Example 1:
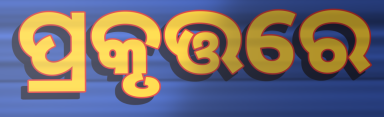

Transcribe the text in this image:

ପ୍ରକୃତ୍ତରେ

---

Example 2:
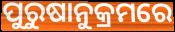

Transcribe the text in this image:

ପୁରୁଷାନୁକ୍ରମରେ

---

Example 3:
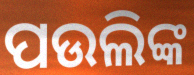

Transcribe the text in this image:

ପଉଲିଙ୍କ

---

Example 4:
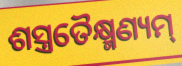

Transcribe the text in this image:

ଶସ୍ତ୍ରତୈକ୍ଷ୍ମଣ୍ୟମ୍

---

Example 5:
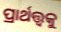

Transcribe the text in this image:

ପ୍ରାର୍ଥତ୍ତ୍ୱକୁ